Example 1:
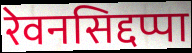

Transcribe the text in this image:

रेवनसिद्दप्पा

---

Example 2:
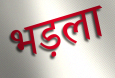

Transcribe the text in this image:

भड़ला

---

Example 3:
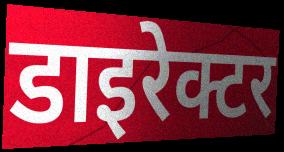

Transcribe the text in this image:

डाइरेक्टर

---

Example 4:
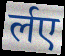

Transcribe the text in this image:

र्लए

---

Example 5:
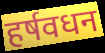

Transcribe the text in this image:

हर्षवधन